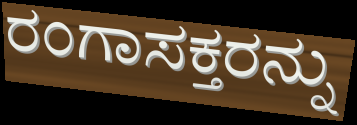
ರಂಗಾಸಕ್ತರನ್ನು